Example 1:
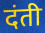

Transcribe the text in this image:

दंती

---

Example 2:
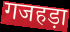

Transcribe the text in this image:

गजहड़ा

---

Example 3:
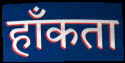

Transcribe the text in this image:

हाँकता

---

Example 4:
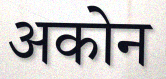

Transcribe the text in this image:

अकोन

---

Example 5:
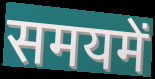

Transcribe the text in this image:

समयमें